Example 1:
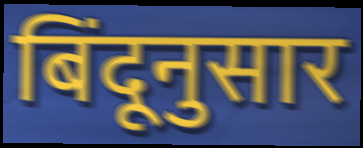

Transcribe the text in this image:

बिंदूनुसार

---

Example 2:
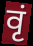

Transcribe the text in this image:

वृं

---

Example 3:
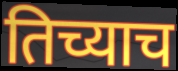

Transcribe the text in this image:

तिच्याच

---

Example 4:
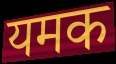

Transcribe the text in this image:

यमक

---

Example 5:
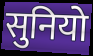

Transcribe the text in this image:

सुनियो